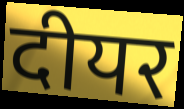
दीयर